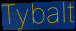
Tybalt